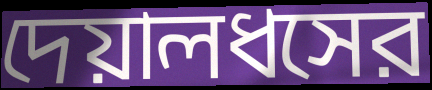
দেয়ালধসের